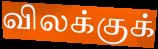
விலக்குக்